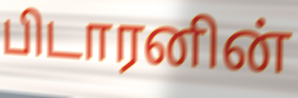
பிடாரனின்